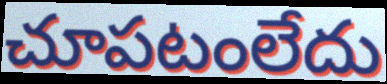
చూపటంలేదు